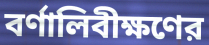
বর্ণালিবীক্ষণের